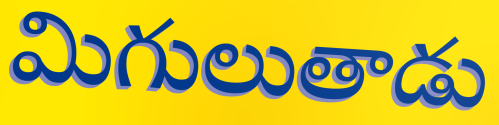
మిగులుతాడు